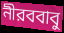
নীরববাবু